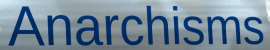
Anarchisms